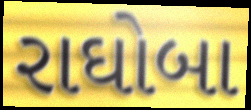
રાઘોબા